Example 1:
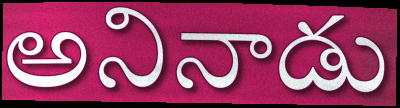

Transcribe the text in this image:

అనినాడు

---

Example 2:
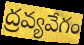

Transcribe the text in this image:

ద్రవ్యవేగం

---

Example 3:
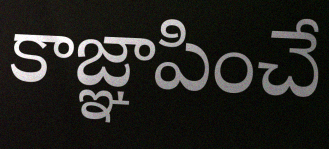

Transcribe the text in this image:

కాజ్ఞాపించే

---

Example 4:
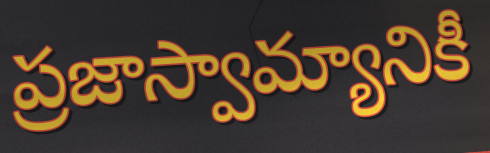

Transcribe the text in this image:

ప్రజాస్వామ్యానికీ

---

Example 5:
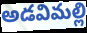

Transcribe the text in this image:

అడవిమల్లి